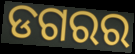
ଡଗରର